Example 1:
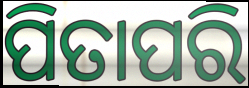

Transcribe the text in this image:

ପିତାପରି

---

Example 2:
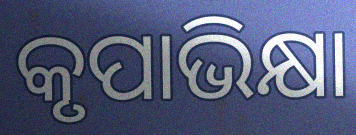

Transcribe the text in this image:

କୃପାଭିକ୍ଷା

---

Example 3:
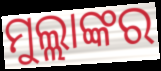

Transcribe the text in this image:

ମୁଲ୍ଲାଙ୍କର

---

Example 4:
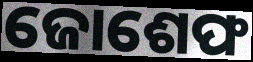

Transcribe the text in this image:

ଜୋଶେଫ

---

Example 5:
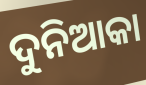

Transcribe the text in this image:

ଦୁନିଆକା